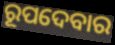
ରୂପଦେବାର